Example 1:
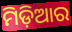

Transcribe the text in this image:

ମିଡ଼ିଆର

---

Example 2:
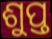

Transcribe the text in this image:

ଶୁପ୍ତ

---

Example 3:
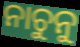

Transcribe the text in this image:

ନାଚୁନୁ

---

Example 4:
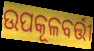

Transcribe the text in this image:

ଉପକୂଳବର୍ତ୍ତୀ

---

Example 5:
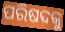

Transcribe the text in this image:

ପରିଷଦକୁ